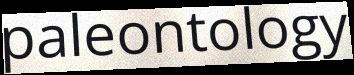
paleontology